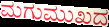
ಮಗುಮುಖದ